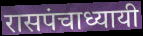
रासपंचाध्यायी